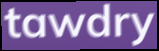
tawdry